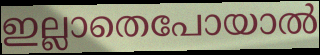
ഇല്ലാതെപോയാൽ